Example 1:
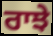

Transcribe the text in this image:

ਰਾਝੇ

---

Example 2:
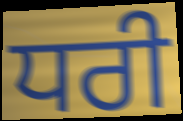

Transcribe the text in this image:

ਧਰੀ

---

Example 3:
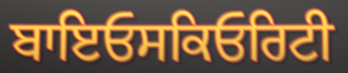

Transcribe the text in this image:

ਬਾਇਓਸਕਿਓਰਿਟੀ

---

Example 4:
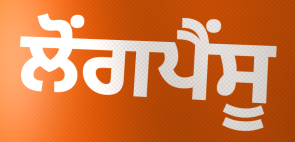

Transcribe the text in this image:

ਲੋਂਗਪੈਂਸੂ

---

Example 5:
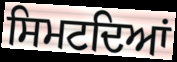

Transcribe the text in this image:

ਸਿਮਟਦਿਆਂ